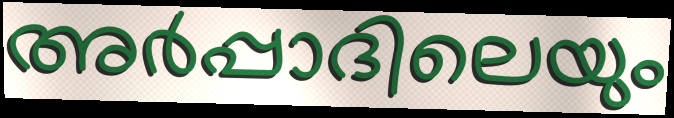
അർപ്പാദിലെയും